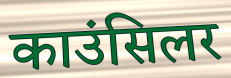
काउंसिलर